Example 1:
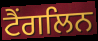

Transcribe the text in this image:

ਟੈਂਗਲਿਨ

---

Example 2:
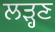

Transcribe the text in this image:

ਲੜ੍ਹਣ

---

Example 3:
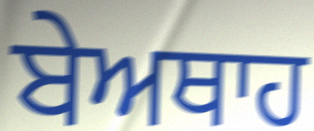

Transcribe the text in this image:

ਬੇਅਥਾਹ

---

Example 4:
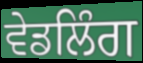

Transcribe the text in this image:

ਵੇਡਲਿੰਗ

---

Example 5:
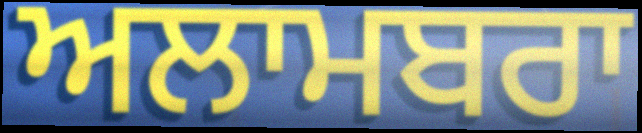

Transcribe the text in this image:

ਅਲਾਮਬਰਾ